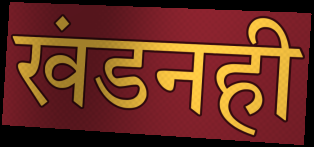
खंडनही